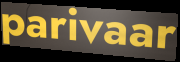
parivaar